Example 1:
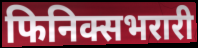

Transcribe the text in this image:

फिनिक्सभरारी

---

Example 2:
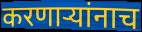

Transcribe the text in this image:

करणार्‍यांनाच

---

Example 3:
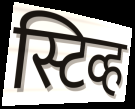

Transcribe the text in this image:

स्टिव्ह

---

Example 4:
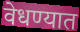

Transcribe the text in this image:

वेधण्यात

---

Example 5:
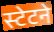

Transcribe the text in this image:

स्टेटने